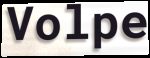
Volpe